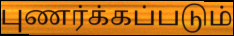
புணர்க்கப்படும்